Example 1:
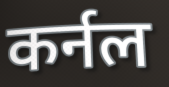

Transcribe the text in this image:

कर्नल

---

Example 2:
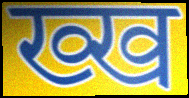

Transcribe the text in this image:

ख्ख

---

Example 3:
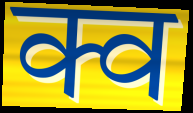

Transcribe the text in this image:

क्व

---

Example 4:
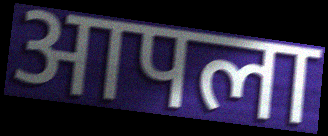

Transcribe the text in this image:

आपला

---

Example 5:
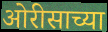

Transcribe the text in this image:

ओरीसाच्या